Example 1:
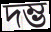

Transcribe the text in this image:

দম্ভ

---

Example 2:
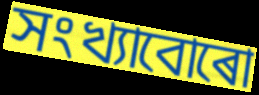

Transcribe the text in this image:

সংখ্যাবোৰো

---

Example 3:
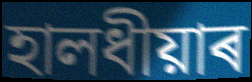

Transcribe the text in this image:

হালধীয়াৰ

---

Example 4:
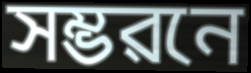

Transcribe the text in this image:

সম্ভৱনে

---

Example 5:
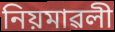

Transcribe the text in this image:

নিয়মাৱলী